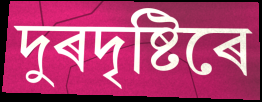
দুৰদৃষ্টিৰে